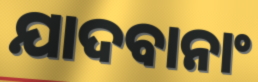
ଯାଦବାନାଂ